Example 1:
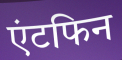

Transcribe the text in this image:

एंटफिन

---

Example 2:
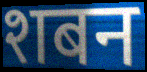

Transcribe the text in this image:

शबन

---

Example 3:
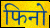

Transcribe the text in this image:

फिनो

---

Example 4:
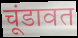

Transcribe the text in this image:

चूंडावत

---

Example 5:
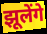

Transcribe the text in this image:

झूलेंगे